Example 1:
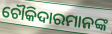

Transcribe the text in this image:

ଚୌକିଦାରମାନଙ୍କ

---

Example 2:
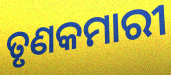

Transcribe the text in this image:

ତୃଣକମାରୀ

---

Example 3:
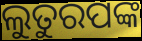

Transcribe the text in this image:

ଲୁତୁରପଙ୍କ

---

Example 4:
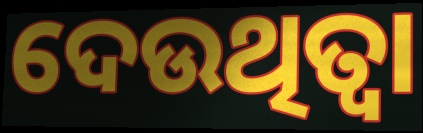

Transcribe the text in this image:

ଦେଉଥିତ୍ବା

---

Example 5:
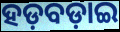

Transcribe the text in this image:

ହଡ଼ବଡ଼ାଇ